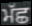
ਮੱਛ